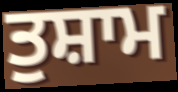
ਤੁਸ਼ਾਮ